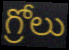
గ్రోలు